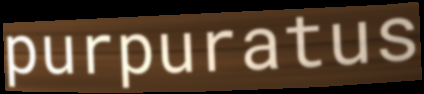
purpuratus